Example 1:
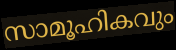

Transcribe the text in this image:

സാമൂഹികവും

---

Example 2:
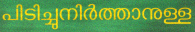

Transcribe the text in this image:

പിടിച്ചുനിർത്താനുള്ള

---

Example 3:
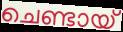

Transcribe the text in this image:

ചെണ്ടായ്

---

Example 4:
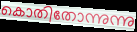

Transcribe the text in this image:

കൊതിതോന്നുന്നു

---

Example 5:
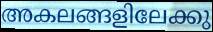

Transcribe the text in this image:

അകലങ്ങളിലേക്കു